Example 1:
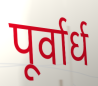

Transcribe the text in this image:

पूर्वार्ध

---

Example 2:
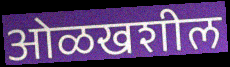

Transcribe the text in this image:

ओळखशील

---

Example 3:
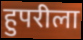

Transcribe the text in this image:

हुपरीला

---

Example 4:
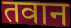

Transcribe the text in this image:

तवान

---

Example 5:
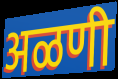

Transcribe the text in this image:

अळणी